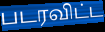
படரவிட்ட